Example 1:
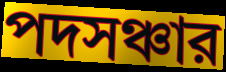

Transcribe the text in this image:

পদসঞ্চার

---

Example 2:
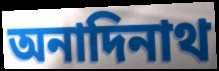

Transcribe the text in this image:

অনাদিনাথ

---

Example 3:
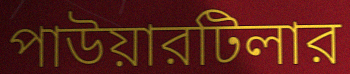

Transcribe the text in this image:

পাউয়ারটিলার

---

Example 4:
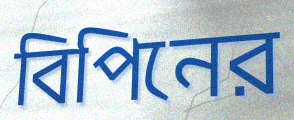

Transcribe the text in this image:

বিপিনের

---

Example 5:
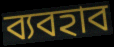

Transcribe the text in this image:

ব্যবহাব